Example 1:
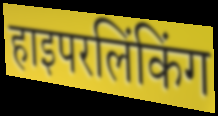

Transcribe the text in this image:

हाइपरलिंकिंग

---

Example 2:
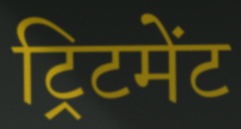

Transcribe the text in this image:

ट्रिटमेंट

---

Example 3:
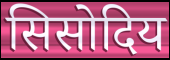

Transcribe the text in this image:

सिसोदिय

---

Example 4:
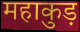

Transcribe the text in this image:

महाकुड़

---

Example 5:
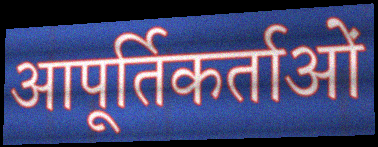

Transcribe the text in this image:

आपूर्तिकर्ताओं